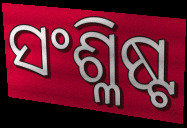
ସଂଶ୍ଳିଷ୍ଟ